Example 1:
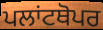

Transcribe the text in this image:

ਪਲਾਂਟਥੋਪਰ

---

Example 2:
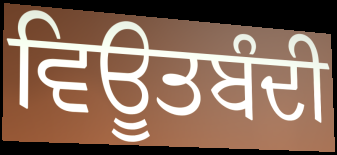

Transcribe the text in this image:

ਵਿਊਤਬੰਦੀ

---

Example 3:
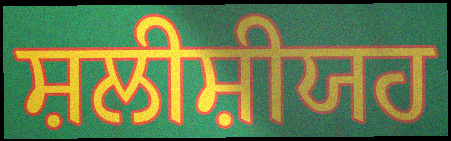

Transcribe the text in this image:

ਸ਼ਲੀਸ਼ੀਯਹ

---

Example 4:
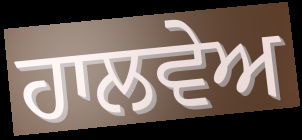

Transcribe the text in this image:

ਹਾਲਵੇਅ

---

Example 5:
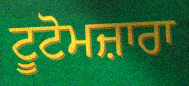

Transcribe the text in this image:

ਟੂਟੋਮਜ਼ਾਰਾ